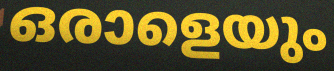
ഒരാളെയും